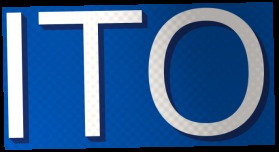
ITO